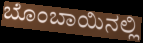
ಬೊಂಬಾಯಿನಲ್ಲಿ